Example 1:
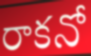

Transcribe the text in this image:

రాకనో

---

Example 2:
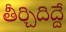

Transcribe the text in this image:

తీర్చిదిద్దే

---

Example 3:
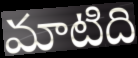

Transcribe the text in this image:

మాటిది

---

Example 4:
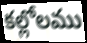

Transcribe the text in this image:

కల్లోలము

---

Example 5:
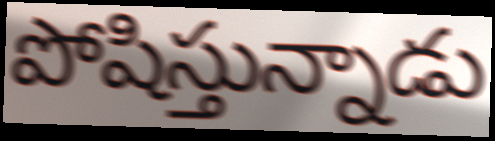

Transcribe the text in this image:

పోషిస్తున్నాడు